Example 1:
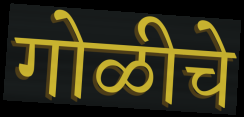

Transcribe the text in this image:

गोळीचे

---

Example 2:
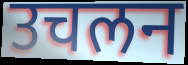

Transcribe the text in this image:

उचलन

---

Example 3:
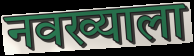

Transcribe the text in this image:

नवख्याला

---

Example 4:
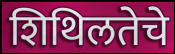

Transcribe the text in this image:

शिथिलतेचे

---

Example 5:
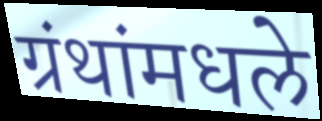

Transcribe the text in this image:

ग्रंथांमधले